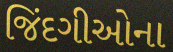
જિંદગીઓના